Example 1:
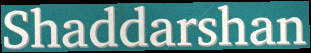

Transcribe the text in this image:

Shaddarshan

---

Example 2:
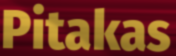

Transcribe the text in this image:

Pitakas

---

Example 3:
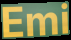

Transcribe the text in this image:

Emi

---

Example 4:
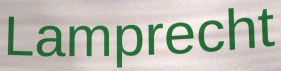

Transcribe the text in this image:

Lamprecht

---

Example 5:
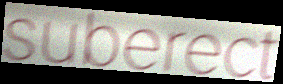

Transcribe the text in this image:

suberect